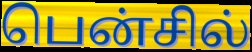
பென்சில்